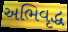
અભિવૃદ્ધ